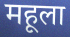
महूला